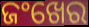
ଜଂଖେର